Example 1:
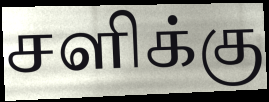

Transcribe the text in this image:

சளிக்கு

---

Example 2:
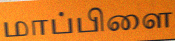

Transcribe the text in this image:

மாப்பிளை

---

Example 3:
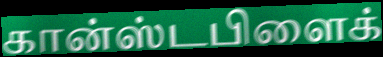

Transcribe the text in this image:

கான்ஸ்டபிளைக்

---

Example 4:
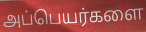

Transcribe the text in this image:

அப்பெயர்களை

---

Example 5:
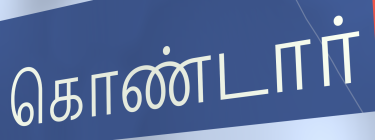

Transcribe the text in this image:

கொண்டார்